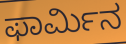
ಫಾರ್ಮಿನ